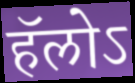
हॅलोऽ